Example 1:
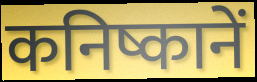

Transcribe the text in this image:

कनिष्कानें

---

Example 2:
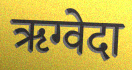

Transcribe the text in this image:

ऋग्वेदा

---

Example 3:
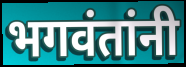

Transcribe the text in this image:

भगवंतांनी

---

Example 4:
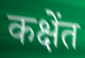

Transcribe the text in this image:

कक्षेंत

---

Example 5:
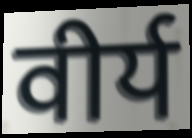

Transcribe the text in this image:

वीर्य